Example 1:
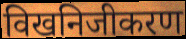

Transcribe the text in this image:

विखनिजीकरण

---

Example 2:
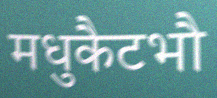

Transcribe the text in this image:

मधुकैटभौ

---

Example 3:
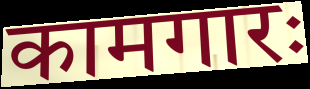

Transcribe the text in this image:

कामगारः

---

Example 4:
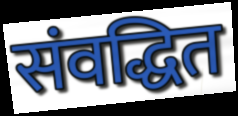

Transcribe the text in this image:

संवद्धित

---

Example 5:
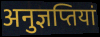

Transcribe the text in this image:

अनुज्ञप्तियां